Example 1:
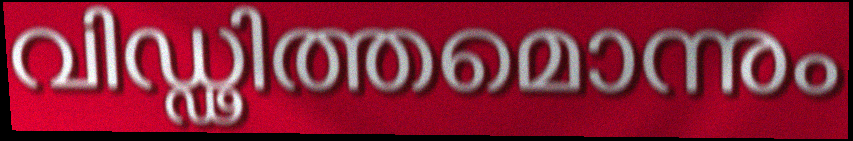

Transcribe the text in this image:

വിഡ്ഢിത്തമൊന്നും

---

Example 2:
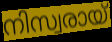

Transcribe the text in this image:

നിസ്വരായ്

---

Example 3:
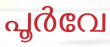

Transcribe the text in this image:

പൂർവേ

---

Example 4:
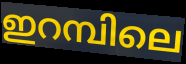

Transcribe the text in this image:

ഇറമ്പിലെ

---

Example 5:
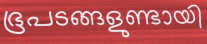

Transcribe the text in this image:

ഭൂപടങ്ങളുണ്ടായി